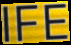
IFE